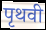
पृथवी